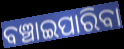
ବଞ୍ଚାଇପାରିବା